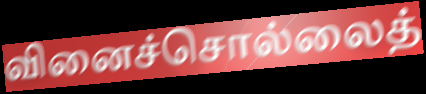
வினைச்சொல்லைத்